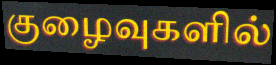
குழைவுகளில்